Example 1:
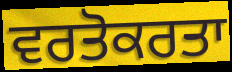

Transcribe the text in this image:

ਵਰਤੋਕਰਤਾ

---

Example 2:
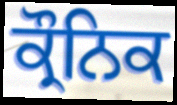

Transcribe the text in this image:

ਕ੍ਰੌਨਿਕ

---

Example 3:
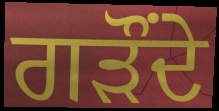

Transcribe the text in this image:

ਗੜੌਂਦੇ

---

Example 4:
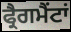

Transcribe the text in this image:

ਫ੍ਰੈਗਮੈਂਟਾਂ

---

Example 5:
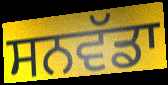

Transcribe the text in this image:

ਸਨਵੱਡਾ